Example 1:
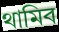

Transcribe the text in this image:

থামিব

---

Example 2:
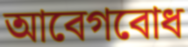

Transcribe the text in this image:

আবেগবোধ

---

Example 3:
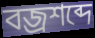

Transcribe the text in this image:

বজ্রশব্দে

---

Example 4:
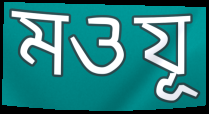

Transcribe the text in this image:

মওযূ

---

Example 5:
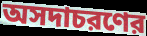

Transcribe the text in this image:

অসদাচরণের